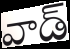
వాడ్